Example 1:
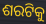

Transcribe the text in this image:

ଶରଟିକୁ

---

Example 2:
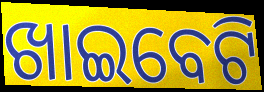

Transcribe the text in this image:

ଖାଇବେଟି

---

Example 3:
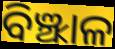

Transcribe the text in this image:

ବିଞ୍ଝାଳ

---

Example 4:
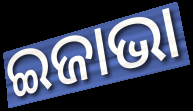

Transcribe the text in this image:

ଇଜାଭା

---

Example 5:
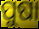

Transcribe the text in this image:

ପୁଷା